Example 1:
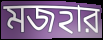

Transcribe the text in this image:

মজহার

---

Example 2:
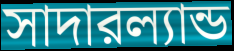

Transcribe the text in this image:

সাদারল্যান্ড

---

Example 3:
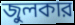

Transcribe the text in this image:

জুলকার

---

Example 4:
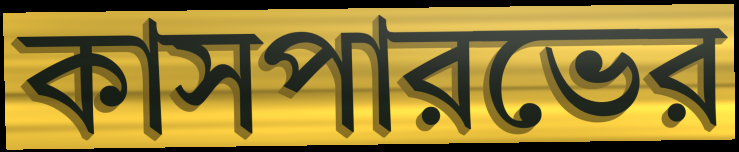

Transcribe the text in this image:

কাসপারভের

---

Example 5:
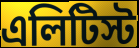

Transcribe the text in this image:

এলিটিস্ট